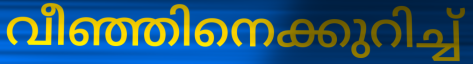
വീഞ്ഞിനെക്കുറിച്ച്